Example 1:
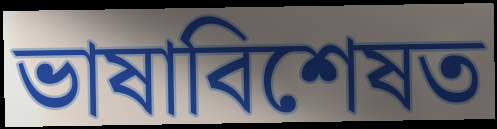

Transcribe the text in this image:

ভাষাবিশেষত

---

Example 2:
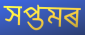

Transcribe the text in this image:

সপ্তমৰ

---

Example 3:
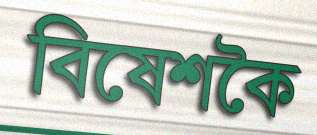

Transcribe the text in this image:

বিষেশকৈ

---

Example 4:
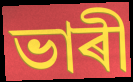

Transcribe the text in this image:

ভাৰী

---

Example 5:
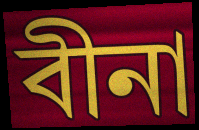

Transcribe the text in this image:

বীনা